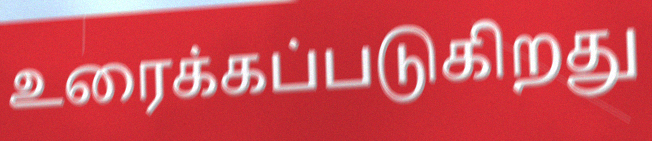
உரைக்கப்படுகிறது